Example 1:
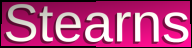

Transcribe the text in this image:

Stearns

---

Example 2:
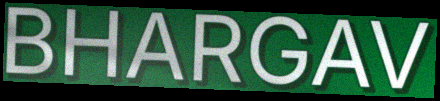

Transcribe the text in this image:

BHARGAV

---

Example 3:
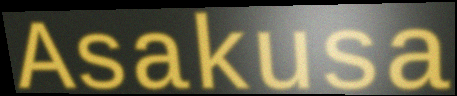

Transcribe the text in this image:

Asakusa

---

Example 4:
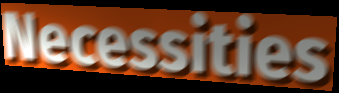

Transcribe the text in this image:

Necessities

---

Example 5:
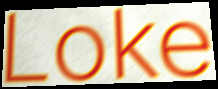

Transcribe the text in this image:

Loke